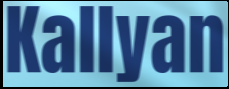
Kallyan